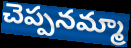
చెప్పనమ్మా